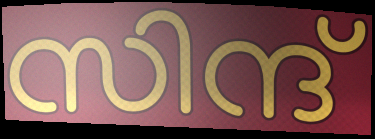
സിന്ദ്